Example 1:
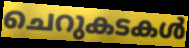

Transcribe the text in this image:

ചെറുകടകൾ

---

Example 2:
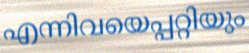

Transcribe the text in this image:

എന്നിവയെപ്പറ്റിയും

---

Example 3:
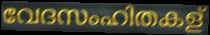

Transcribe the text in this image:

വേദസംഹിതകള്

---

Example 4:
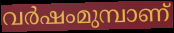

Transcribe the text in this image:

വർഷംമുമ്പാണ്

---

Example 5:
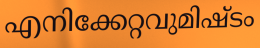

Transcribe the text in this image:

എനിക്കേറ്റവുമിഷ്ടം